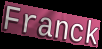
Franck